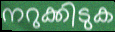
നറുക്കിടുക